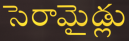
సెరామైడ్లు